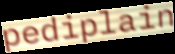
pediplain